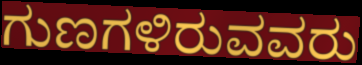
ಗುಣಗಳಿರುವವರು